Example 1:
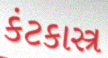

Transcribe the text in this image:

કંટકાસ્ત્ર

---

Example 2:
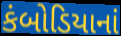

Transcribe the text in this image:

કંબોડિયાનાં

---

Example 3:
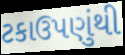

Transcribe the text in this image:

ટકાઉપણુંથી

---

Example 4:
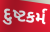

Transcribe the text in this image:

દુષ્ટકર્મ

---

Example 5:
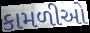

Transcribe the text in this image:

કામળીઓ